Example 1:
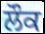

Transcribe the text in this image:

ਲੌਕ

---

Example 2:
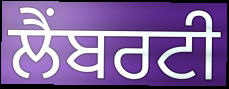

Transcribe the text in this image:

ਲੈਂਬਰਟੀ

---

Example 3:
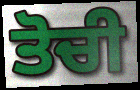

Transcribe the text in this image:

ਤੋਚੀ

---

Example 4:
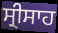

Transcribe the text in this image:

ਸ੍ਰੀਸਾਹ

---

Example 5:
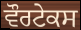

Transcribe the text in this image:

ਵੌਰਟੇਕਸ